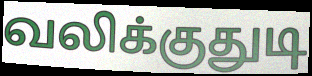
வலிக்குதுடி